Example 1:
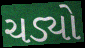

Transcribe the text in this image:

ચડ્યો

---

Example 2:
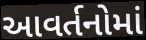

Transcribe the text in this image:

આવર્તનોમાં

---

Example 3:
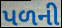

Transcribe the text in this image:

પળની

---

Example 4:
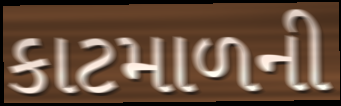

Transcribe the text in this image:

કાટમાળની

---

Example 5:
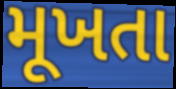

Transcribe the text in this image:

મૂખતા